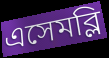
এসেমব্লি